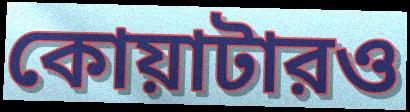
কোয়াটারও